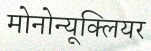
मोनोन्यूक्लियर